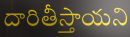
దారితీస్తాయని